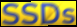
SSDs